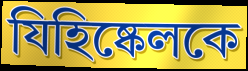
যিহিষ্কেলকে